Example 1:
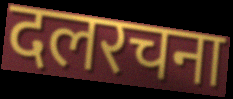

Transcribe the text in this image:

दलरचना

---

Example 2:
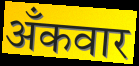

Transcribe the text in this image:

अँकवार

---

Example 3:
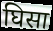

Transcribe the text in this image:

घिसा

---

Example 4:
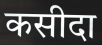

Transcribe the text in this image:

कसीदा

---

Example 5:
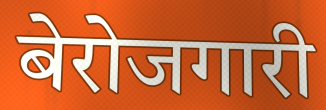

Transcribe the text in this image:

बेरोजगारी